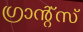
ഗ്രാന്റ്സ്